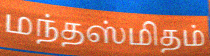
மந்தஸ்மிதம்